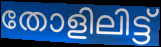
തോളിലിട്ട്